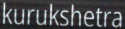
kurukshetra